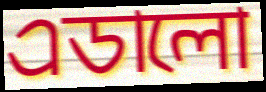
এডালো